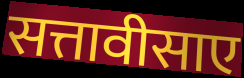
सत्तावीसाए